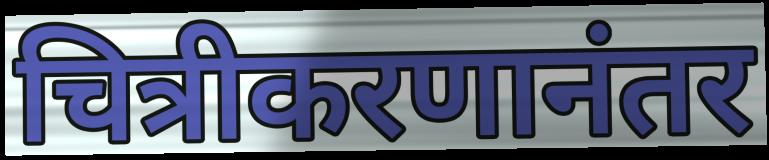
चित्रीकरणानंतर